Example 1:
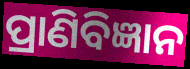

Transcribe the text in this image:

ପ୍ରାଣିବିଜ୍ଞାନ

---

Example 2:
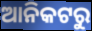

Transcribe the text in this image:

ଆନିକଟରୁ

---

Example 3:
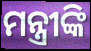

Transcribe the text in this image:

ମନ୍ତ୍ରୀଙ୍କି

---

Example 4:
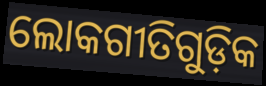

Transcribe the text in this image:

ଲୋକଗୀତିଗୁଡ଼ିକ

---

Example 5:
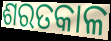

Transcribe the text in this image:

ଶରତକାଳ